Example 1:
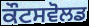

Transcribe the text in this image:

ਕੌਟਸਵੋਲਡ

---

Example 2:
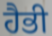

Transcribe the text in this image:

ਹੈਭੀ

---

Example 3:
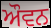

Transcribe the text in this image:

ਔਵਨ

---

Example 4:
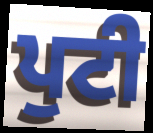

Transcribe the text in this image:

ਪੁਟੀ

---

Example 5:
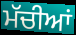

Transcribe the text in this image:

ਮੱਚੀਆਂ